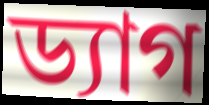
ড্যাগ